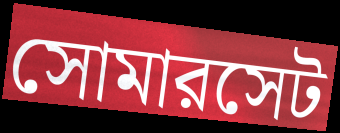
সোমারসেট